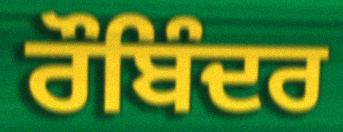
ਰੌਬਿੰਦਰ